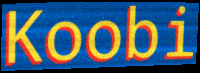
Koobi